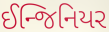
ઈન્જિનિયર